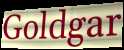
Goldgar